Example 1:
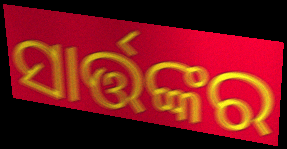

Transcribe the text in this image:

ସାର୍ତ୍ତଙ୍କର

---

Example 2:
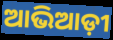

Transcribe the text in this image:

ଆଭିଆଡ଼ୀ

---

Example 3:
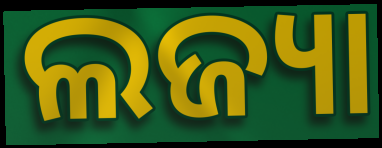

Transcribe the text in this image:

ଲଜ୍ୟା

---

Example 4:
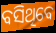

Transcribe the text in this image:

ବସିଥିବେ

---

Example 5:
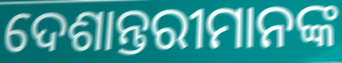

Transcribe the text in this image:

ଦେଶାନ୍ତରୀମାନଙ୍କ